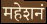
महेशनं